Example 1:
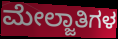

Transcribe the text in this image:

ಮೇಲ್ಜಾತಿಗಳ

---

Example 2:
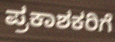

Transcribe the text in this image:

ಪ್ರಕಾಶಕರಿಗೆ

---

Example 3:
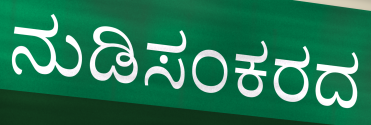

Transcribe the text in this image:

ನುಡಿಸಂಕರದ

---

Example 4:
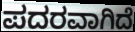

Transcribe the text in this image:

ಪದರವಾಗಿದೆ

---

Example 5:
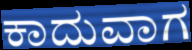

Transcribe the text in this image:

ಕಾದುವಾಗ